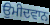
ਉਮੀਦਵਾਨ